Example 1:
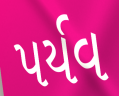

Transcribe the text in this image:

પર્યવ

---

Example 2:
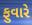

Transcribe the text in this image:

ફુવારે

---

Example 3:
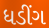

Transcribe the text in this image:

ધડીંગ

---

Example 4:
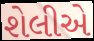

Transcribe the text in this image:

શેલીએ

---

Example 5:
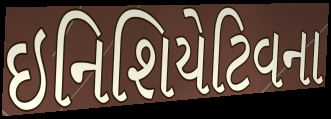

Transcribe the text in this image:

ઇનિશિયેટિવના